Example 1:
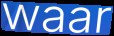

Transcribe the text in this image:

waar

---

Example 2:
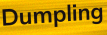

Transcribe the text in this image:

Dumpling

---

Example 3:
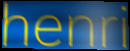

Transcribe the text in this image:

henri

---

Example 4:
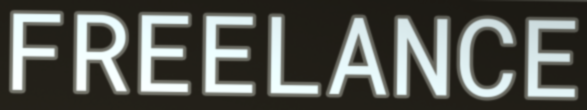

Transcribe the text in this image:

FREELANCE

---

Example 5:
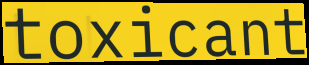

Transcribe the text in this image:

toxicant